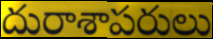
దురాశాపరులు